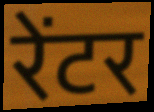
रेंटर